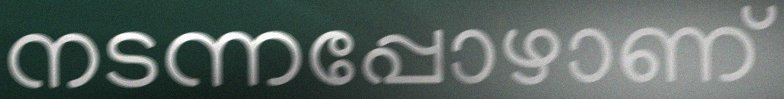
നടന്നപ്പോഴാണ്